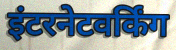
इंटरनेटवर्किंग